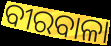
ବୀରବାଳା